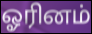
ஓரினம்